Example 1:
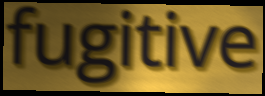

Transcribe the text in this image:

fugitive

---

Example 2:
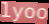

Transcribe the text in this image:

lyoo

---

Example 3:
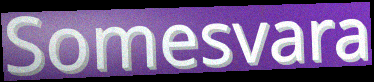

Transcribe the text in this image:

Somesvara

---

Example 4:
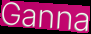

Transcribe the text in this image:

Ganna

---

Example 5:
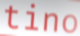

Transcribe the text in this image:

tino